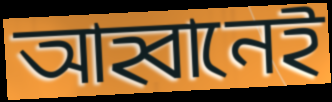
আহ্বানেই